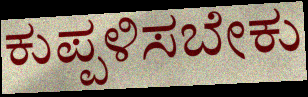
ಕುಪ್ಪಳಿಸಬೇಕು